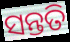
ସନ୍ତତି